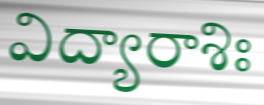
విద్యారాశిః